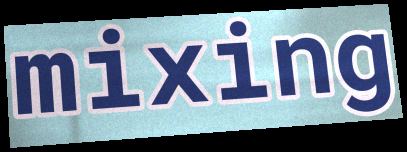
mixing